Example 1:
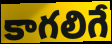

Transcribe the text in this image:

కాగలిగే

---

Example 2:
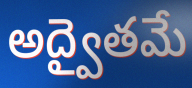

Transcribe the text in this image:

అద్వైతమే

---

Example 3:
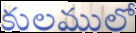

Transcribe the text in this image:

కులములో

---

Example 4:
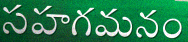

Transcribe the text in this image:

సహగమనం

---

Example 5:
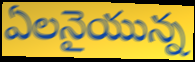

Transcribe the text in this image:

ఏలనైయున్న